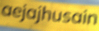
aejajhusain